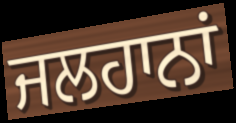
ਜਲਹਾਨਾਂ